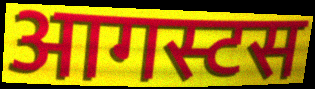
आगस्टस